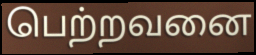
பெற்றவனை